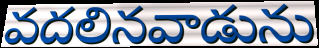
వదలినవాడును